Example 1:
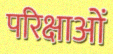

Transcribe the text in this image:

परिक्षाओं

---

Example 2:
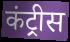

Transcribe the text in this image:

कंट्रीस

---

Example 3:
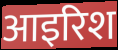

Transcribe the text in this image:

आइरिश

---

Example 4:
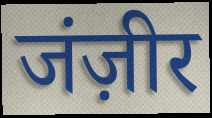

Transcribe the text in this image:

जंज़ीर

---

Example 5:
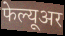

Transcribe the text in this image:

फेल्यूअर